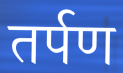
तर्पण